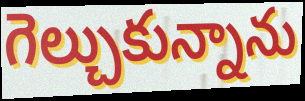
గెల్చుకున్నాను